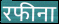
रफीना